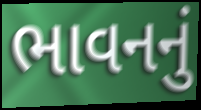
ભાવનનું